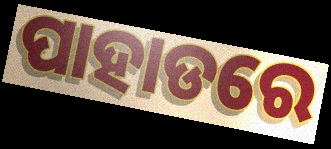
ପାହାଡରେ